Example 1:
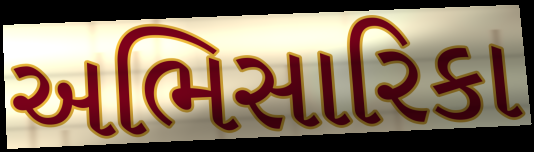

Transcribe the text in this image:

અભિસારિકા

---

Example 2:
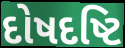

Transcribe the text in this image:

દોષદષ્ટિ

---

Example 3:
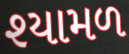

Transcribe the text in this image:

શ્યામળ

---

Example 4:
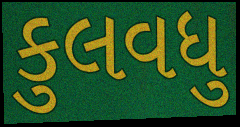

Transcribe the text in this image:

કુલવધુ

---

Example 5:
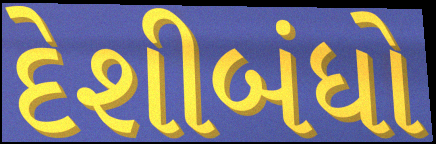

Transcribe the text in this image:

દેશીબંધો